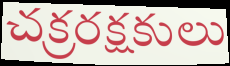
చక్రరక్షకులు